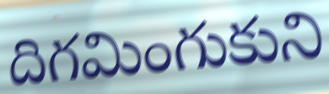
దిగమింగుకుని